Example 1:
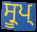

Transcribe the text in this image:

ਸ੍ਰੂਪ੍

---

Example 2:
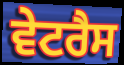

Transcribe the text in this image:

ਵੇਟਰੈਸ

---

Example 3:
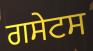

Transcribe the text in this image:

ਗਸੇਟਸ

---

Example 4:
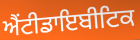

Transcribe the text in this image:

ਐਂਟੀਡਾਇਬੀਟਿਕ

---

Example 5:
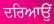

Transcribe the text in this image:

ਦਰਿਆਉਂ